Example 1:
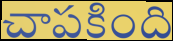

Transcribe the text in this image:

చాపకింది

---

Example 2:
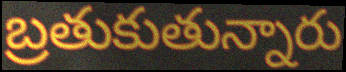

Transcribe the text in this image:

బ్రతుకుతున్నారు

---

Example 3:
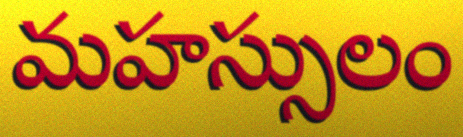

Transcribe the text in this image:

మహస్సులం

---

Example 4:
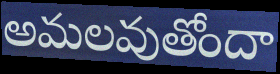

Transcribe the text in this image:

అమలవుతోందా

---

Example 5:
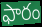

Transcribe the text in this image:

ఫారం